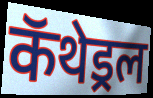
कॅथेड्रल